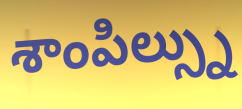
శాంపిల్స్ను